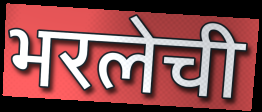
भरलेची